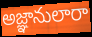
అజ్ఞానులారా